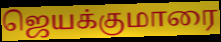
ஜெயக்குமாரை